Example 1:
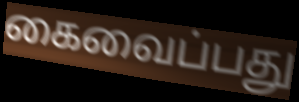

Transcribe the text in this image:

கைவைப்பது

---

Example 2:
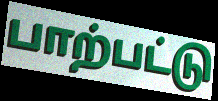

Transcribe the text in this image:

பாற்பட்டு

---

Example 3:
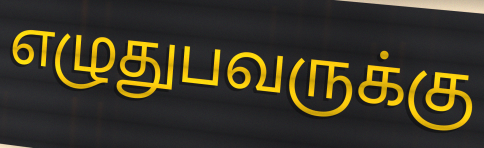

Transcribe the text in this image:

எழுதுபவருக்கு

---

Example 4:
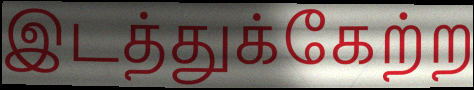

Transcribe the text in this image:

இடத்துக்கேற்ற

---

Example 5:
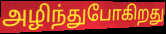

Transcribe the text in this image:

அழிந்துபோகிறது